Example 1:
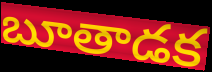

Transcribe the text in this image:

బూతాడక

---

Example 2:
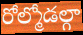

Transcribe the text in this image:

రోల్మోడల్గా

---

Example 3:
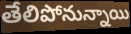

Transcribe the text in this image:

తేలిపోనున్నాయి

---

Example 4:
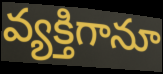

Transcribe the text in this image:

వ్యక్తిగానూ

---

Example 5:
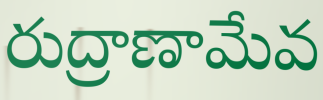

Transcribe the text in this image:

రుద్రాణామేవ